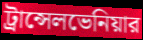
ট্রান্সেলভেনিয়ার